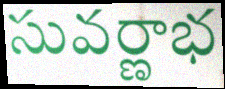
సువర్ణాభ